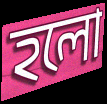
হলো